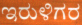
ಇರುಳಿಗರ